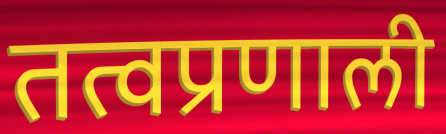
तत्वप्रणाली